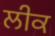
ਲੀਕ